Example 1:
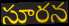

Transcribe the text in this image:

సూరన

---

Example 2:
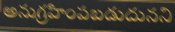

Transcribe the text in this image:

అనుగ్రహింపబడుదునని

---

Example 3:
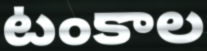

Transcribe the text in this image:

టంకాల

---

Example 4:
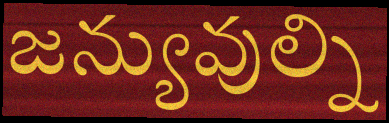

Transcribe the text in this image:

జన్యువుల్ని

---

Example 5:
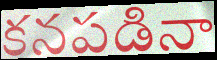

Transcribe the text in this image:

కనపడినా